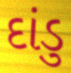
દાંડુ